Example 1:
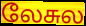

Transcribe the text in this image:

லேசுல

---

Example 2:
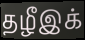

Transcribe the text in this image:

தழீஇக்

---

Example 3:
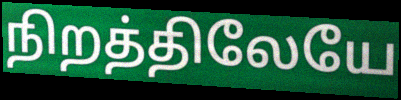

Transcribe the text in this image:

நிறத்திலேயே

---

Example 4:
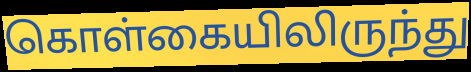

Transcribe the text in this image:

கொள்கையிலிருந்து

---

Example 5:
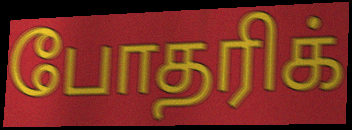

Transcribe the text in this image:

போதரிக்